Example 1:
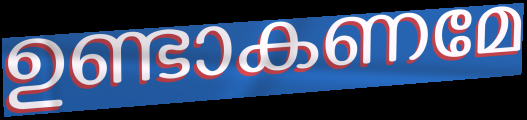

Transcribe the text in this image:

ഉണ്ടാകണമേ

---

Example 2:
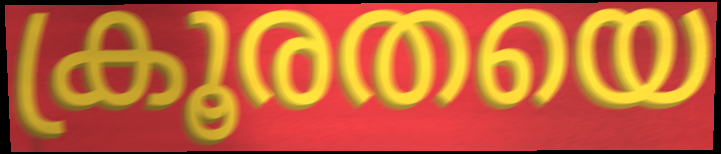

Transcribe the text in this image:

ക്രൂരതയെ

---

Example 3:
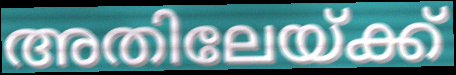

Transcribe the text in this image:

അതിലേയ്ക്ക്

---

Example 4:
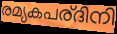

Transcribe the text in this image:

രമ്യകപര്ദിനി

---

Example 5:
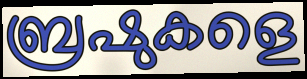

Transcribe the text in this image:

ബ്രഷുകളെ